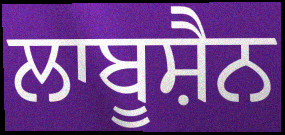
ਲਾਬੂਸ਼ੈਨ